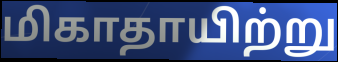
மிகாதாயிற்று